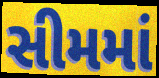
સીમમાં